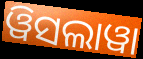
ୱିସଲାୱା